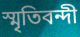
স্মৃতিবন্দী